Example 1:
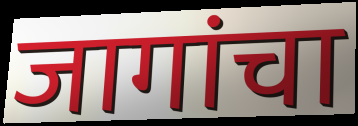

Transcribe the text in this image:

जागांचा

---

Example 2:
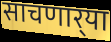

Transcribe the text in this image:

साचणार्‍या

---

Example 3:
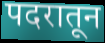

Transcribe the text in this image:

पदरातून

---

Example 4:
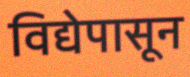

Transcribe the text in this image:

विद्येपासून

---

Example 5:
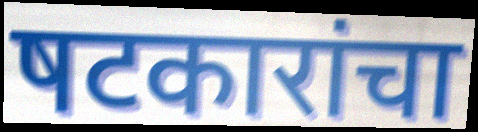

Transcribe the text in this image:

षटकारांचा